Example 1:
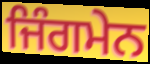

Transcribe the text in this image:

ਜਿੰਗਮੇਨ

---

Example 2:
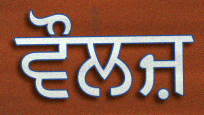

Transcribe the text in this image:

ਵੌਲਜ਼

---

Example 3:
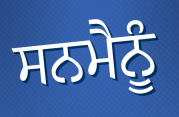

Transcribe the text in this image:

ਸਨਮੈਨੂੰ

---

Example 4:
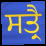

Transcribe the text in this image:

ਸਤ੍ਰੈ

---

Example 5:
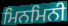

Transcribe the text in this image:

ਮਿਨਮਿਨੀ